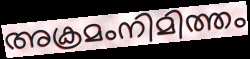
അക്രമംനിമിത്തം